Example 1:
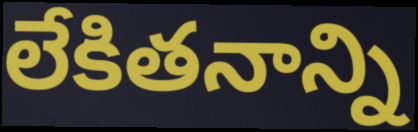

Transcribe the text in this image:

లేకితనాన్ని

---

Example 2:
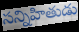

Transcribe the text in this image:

సన్నిహితుడు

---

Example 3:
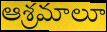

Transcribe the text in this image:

ఆశ్రమాలూ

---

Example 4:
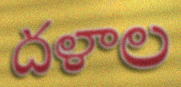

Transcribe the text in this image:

దళాల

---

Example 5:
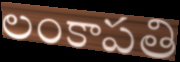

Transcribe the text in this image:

లంకాపతి